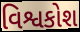
વિશ્વકોશ